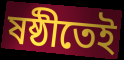
ষষ্ঠীতেই